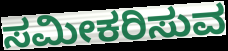
ಸಮೀಕರಿಸುವ